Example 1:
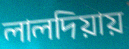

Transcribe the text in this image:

লালদিয়ায়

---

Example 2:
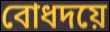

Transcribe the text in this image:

বোধদয়ে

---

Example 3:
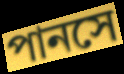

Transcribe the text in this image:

পানসে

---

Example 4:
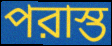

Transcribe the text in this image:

পরাস্ত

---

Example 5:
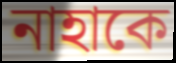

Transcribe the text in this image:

নাহাকে